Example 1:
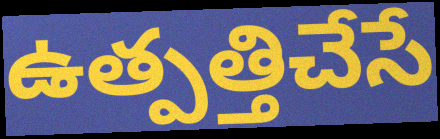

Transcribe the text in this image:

ఉత్పత్తిచేసే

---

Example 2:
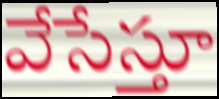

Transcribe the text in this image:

వేసేస్తూ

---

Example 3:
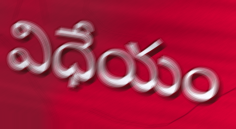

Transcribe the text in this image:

విధేయం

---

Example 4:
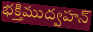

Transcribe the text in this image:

భక్తిముద్వహన్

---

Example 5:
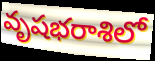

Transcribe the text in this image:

వృషభరాశిలో